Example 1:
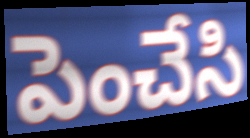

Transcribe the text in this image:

పెంచేసి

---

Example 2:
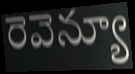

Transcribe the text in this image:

రెవెన్యూ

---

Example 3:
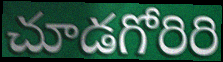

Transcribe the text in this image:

చూడగోరిరి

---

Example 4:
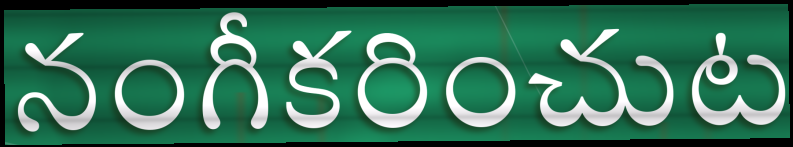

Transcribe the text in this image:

నంగీకరించుట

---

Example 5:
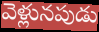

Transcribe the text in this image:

వెళ్లునపుడు